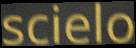
scielo